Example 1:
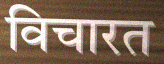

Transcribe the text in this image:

विचारत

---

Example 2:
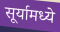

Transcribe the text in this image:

सूर्यामध्ये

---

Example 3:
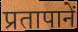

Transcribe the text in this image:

प्रतापानें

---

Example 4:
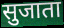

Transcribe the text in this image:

सुजाता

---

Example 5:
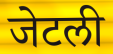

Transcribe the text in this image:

जेटली